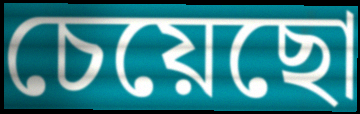
চেয়েছো